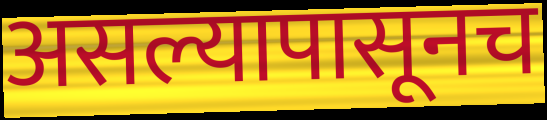
असल्यापासूनच